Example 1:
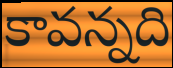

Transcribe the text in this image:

కావన్నది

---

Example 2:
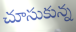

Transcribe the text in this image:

చూసుకున్న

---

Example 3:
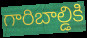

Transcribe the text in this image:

గారిబాల్డికి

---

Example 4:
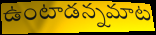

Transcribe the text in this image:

ఉంటాడన్నమాట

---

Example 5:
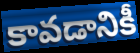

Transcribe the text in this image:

కావడానికీ